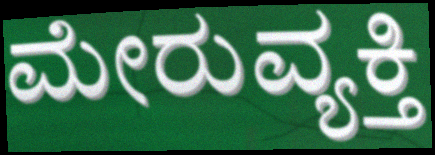
ಮೇರುವ್ಯಕ್ತಿ